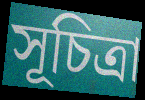
সূচিত্রা